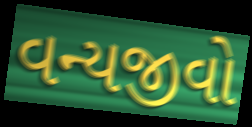
વન્યજીવો